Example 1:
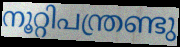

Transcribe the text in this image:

നൂറ്റിപന്ത്രണ്ടു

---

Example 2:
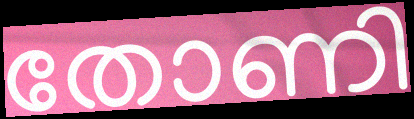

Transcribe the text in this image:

തോണി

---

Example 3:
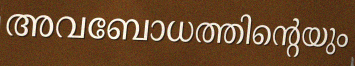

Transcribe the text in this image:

അവബോധത്തിന്റെയും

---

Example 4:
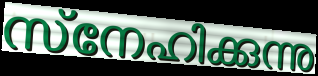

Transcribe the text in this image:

സ്‌നേഹിക്കുന്നു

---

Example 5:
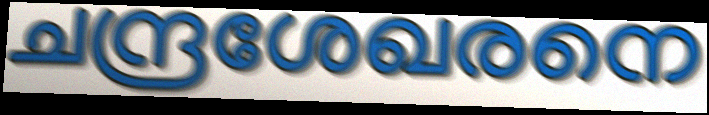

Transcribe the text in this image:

ചന്ദ്രശേഖരനെ